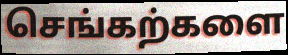
செங்கற்களை